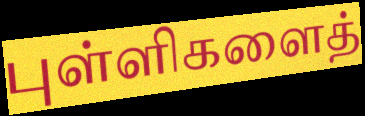
புள்ளிகளைத்